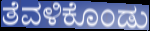
ತೆವಳಿಕೊಂಡು